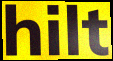
hilt